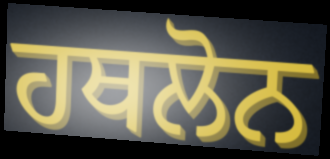
ਹਥਲੋਨ